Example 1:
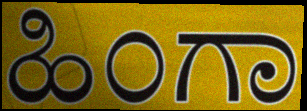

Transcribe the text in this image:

ಹಿಂಗಾ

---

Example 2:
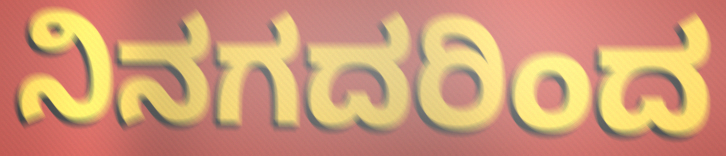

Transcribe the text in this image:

ನಿನಗದರಿಂದ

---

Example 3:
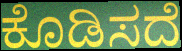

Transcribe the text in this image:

ಕೊಡಿಸದೆ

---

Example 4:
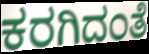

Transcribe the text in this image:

ಕರಗಿದಂತೆ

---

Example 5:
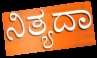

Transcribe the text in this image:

ನಿತ್ಯದಾ